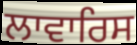
ਲਾਵਾਰਿਸ